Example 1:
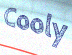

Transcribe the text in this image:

Cooly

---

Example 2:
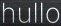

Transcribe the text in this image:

hullo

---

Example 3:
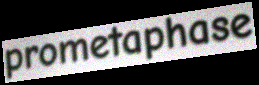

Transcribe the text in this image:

prometaphase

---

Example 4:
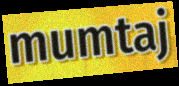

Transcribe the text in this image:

mumtaj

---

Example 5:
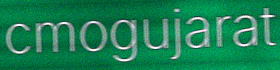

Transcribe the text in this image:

cmogujarat